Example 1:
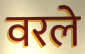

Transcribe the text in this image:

वरले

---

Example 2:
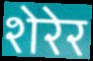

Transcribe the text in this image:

शेरेर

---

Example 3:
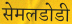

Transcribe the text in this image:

सेमलडोडी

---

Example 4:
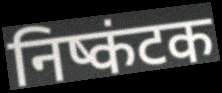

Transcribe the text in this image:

निष्कंटक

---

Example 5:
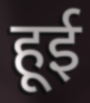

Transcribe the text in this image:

हूई